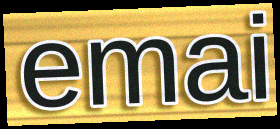
emai